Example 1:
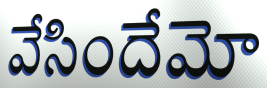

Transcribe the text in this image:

వేసిందేమో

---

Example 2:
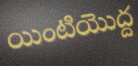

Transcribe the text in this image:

యింటియొద్ద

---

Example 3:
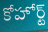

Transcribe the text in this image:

కోహోర్ట్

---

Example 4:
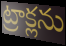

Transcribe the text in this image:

ట్రాక్లను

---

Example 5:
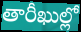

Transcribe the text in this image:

తారీఖుల్లో